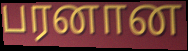
பரனான